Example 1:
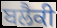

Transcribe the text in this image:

ਬਲੈਕੀ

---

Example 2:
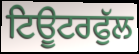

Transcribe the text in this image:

ਟਿਊਟਰਫੁੱਲ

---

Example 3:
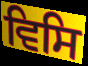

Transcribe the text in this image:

ਵਿਸਿ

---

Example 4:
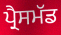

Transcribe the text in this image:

ਪ੍ਰੈਸਮੱਡ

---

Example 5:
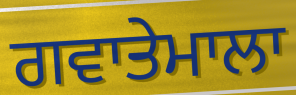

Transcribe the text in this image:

ਗਵਾਤੇਮਾਲਾ